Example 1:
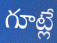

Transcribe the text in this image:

గూట్లే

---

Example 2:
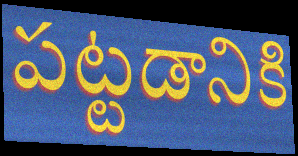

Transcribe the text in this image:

పట్టడానికి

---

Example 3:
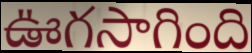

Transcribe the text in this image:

ఊగసాగింది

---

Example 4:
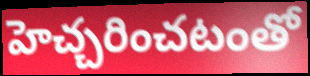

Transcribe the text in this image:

హెచ్చరించటంతో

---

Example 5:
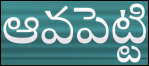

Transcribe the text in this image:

ఆవపెట్టి